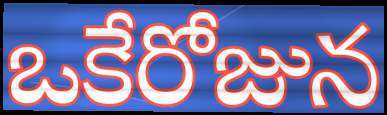
ఒకేరోజున